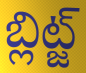
బ్లిట్జ్